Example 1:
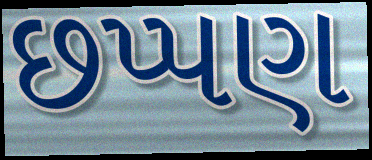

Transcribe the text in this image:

છપ્પણ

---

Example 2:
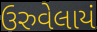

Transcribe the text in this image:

ઉરુવેલાયં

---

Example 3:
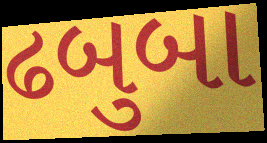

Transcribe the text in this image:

ઢબુબા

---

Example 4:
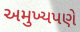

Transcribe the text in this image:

અમુખ્યપણે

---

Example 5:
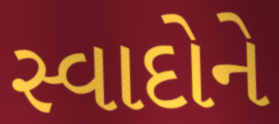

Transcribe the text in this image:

સ્વાદોને